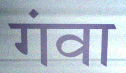
गंवा